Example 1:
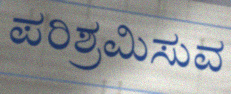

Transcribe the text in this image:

ಪರಿಶ್ರಮಿಸುವ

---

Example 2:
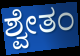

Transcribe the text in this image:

ಶ್ವೇತಂ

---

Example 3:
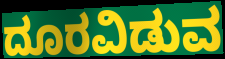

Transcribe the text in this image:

ದೂರವಿಡುವ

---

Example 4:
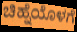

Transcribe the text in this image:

ಚಿಹ್ನೆಯೊಳಗೆ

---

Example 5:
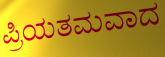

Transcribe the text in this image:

ಪ್ರಿಯತಮವಾದ